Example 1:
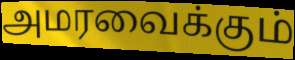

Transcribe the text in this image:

அமரவைக்கும்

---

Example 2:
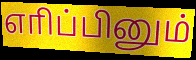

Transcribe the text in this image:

எரிப்பினும்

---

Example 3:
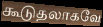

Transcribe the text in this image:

கூடுதலாகவே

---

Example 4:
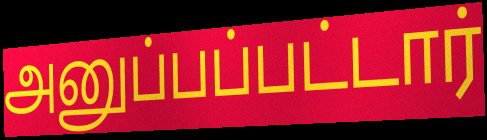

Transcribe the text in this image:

அனுப்பப்பட்டார்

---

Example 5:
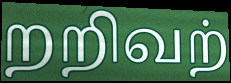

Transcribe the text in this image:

றறிவற்